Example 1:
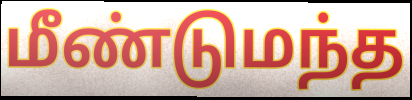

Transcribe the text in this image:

மீண்டுமந்த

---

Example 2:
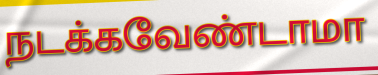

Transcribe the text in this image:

நடக்கவேண்டாமா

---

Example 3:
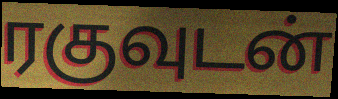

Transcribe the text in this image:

ரகுவுடன்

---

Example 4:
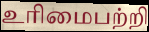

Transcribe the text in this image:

உரிமைபற்றி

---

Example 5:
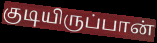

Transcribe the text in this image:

குடியிருப்பான்